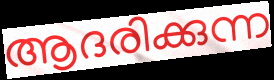
ആദരിക്കുന്ന